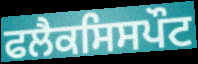
ਫਲੈਕਸਿਸਪੌਟ